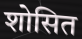
शोसित